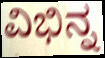
ವಿಭಿನ್ನ